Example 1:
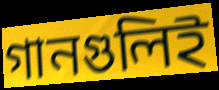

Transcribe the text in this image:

গানগুলিই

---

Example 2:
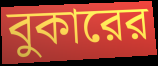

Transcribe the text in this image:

বুকারের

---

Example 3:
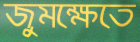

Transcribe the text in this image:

জুমক্ষেতে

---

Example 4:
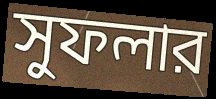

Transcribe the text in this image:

সুফলার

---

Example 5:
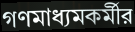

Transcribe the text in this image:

গণমাধ্যমকর্মীর